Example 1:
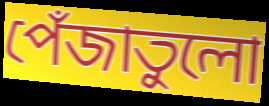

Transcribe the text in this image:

পেঁজাতুলো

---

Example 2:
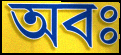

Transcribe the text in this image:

অবঃ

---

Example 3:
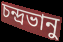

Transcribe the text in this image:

চন্দ্রভানু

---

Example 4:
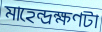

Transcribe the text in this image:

মাহেন্দ্রক্ষণটা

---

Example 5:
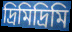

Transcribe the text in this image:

দ্রিমিদ্রিমি